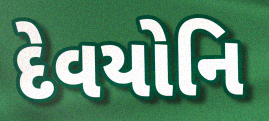
દેવયોનિ